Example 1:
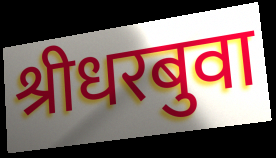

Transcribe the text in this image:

श्रीधरबुवा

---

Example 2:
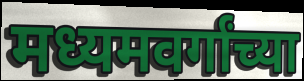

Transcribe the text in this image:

मध्यमवर्गांच्या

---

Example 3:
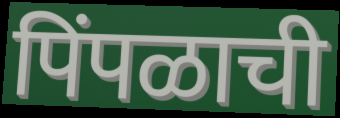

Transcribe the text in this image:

पिंपळाची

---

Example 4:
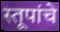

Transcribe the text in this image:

स्तूपांचे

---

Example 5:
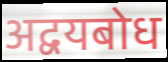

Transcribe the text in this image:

अद्वयबोध